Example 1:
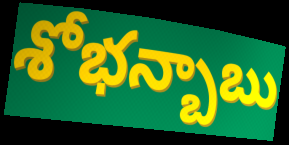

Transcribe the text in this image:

శోభన్బాబు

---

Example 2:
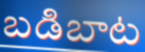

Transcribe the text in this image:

బడిబాట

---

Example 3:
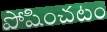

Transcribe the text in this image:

పోషించటం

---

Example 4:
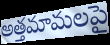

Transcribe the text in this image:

అత్తమామలపై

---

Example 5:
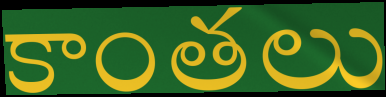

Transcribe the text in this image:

కాంతలు